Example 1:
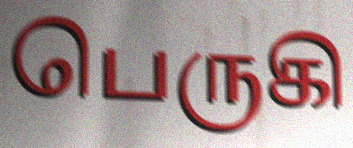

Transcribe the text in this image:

பெருகி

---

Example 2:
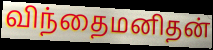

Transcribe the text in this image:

விந்தைமனிதன்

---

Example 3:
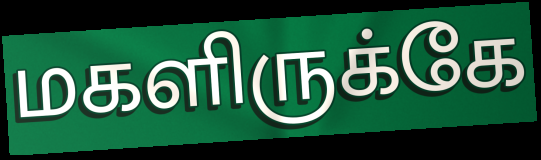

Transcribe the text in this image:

மகளிருக்கே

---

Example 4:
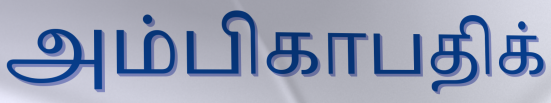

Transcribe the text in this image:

அம்பிகாபதிக்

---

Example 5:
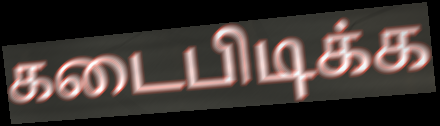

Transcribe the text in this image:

கடைபிடிக்க